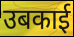
उबकाई